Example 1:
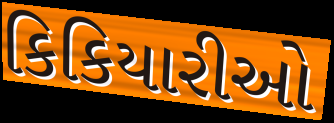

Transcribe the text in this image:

કિકિયારીઓ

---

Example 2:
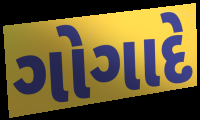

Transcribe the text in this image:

ગોગાદે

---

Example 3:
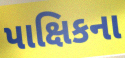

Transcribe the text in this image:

પાક્ષિકના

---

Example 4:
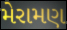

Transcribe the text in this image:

મેરામણ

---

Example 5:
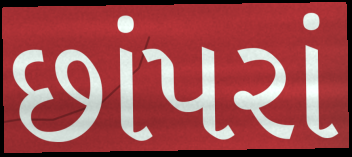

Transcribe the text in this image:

છાંપરાં